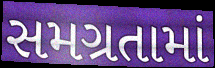
સમગ્રતામાં